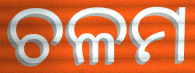
ଚଳମ